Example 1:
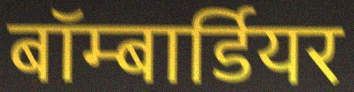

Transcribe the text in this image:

बॉम्बार्डियर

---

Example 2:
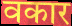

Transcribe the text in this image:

वकार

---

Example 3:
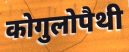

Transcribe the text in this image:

कोगुलोपैथी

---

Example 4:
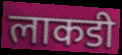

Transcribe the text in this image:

लाकडी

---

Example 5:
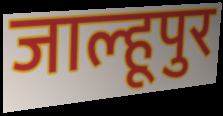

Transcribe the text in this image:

जाल्हूपुर